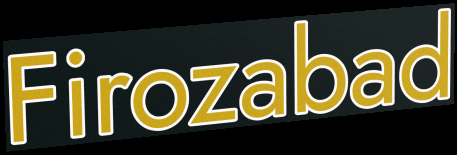
Firozabad